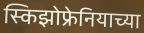
स्किझोफ्रेनियाच्या